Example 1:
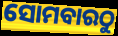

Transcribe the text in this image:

ସୋମବାରଠୁ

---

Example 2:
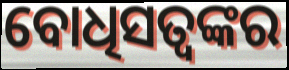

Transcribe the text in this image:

ବୋଧିସତ୍ୱଙ୍କର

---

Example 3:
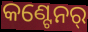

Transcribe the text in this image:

କଣ୍ଟେନର୍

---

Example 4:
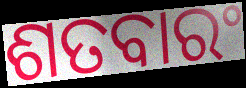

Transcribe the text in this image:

ଶତବାରଂ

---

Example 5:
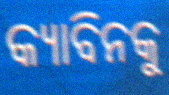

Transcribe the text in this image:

କ୍ୟାବିନକୁ